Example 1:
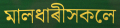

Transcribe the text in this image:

মালধাৰীসকলে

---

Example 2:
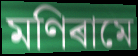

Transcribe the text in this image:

মণিৰামে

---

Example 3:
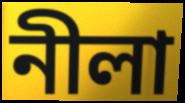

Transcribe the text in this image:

নীলা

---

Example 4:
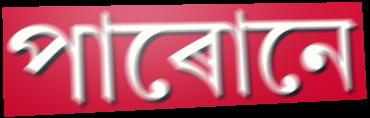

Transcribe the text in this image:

পাৰোনে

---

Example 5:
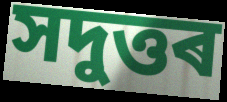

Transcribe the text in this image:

সদুত্তৰ